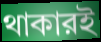
থাকারই